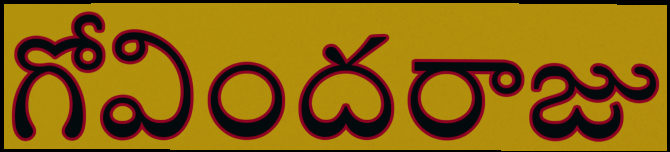
గోవిందరాజు